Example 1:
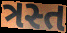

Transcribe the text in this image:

ત્રસ્ત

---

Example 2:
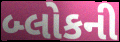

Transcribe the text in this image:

બ્લોકની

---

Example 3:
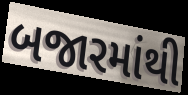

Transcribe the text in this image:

બજારમાંથી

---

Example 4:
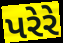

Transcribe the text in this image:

પરેરે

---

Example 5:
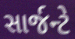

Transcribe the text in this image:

સાર્જન્ટે